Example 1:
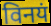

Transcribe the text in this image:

विनयं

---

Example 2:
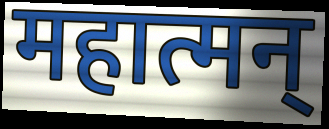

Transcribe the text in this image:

महात्मन्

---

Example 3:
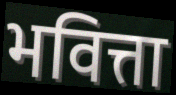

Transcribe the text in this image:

भवित्ता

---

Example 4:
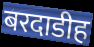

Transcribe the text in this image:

बरदाडीह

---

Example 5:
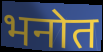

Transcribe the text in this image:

भनोत